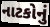
નાટકોનું